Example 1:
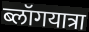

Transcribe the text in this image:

ब्लॉगयात्रा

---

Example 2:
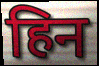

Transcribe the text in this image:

हिन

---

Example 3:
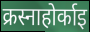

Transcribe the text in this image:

क्रस्नाहोर्काइ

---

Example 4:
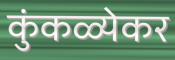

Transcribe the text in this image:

कुंकळ्येकर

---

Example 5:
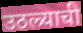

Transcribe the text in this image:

उठल्याची